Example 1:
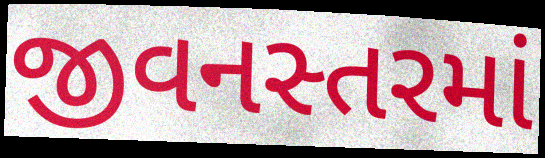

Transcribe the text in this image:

જીવનસ્તરમાં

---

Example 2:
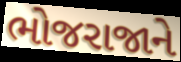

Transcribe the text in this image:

ભોજરાજાને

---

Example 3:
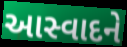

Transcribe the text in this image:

આસ્વાદને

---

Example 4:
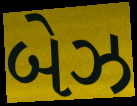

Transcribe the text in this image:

બેઝ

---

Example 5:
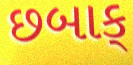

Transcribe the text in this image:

છબાક્